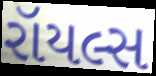
રૉયલ્સ